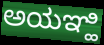
ಅಯಞ್ಹಿ